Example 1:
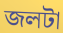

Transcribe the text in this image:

জলটা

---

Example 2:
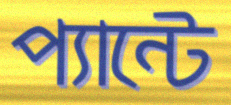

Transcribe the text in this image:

প্যান্টে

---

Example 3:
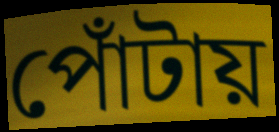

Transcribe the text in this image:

পোঁটায়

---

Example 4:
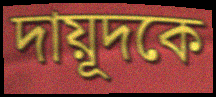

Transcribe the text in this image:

দায়ূদকে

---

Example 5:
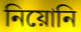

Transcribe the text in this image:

নিয়োনি